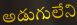
అడుగులేని